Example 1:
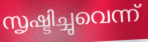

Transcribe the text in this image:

സൃഷ്ടിച്ചുവെന്ന്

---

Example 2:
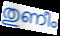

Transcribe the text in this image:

തുണീം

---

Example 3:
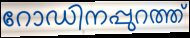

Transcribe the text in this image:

റോഡിനപ്പുറത്ത്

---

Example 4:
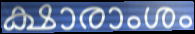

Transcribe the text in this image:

ക്ഷാരാംശം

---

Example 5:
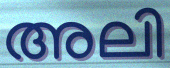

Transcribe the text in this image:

അലി